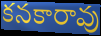
కనకారావు